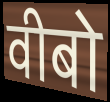
वीबो